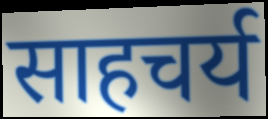
साहचर्य